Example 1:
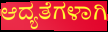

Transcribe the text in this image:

ಆದ್ಯತೆಗಳಾಗಿ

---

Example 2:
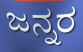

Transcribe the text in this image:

ಜನ್ನರ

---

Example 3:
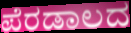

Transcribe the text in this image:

ಪೆರಡಾಲದ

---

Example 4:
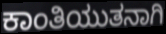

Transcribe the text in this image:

ಕಾಂತಿಯುತನಾಗಿ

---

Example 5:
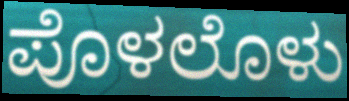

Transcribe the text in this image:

ಪೊಳಲೊಳು